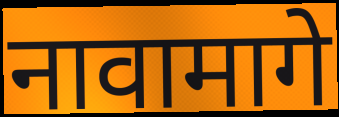
नावामागे